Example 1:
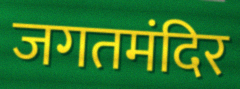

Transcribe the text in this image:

जगतमंदिर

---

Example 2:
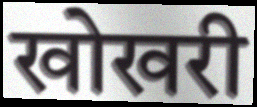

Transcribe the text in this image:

खोखरी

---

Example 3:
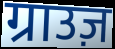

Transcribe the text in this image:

ग्राउज़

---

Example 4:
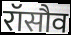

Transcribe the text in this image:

रॉसौव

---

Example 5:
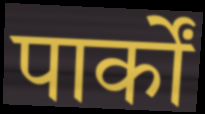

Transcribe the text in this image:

पार्कों